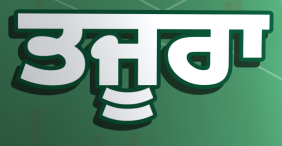
ਤਜੂਰਾ